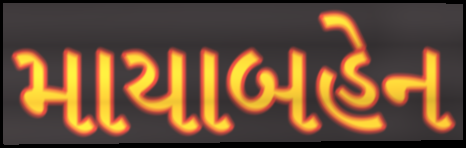
માયાબહેન